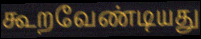
கூறவேண்டியது